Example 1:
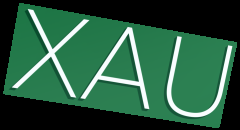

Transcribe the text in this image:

XAU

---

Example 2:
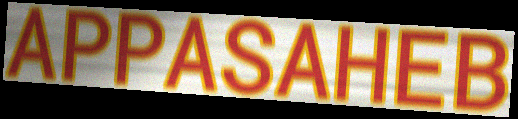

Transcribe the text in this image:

APPASAHEB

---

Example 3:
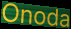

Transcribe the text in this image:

Onoda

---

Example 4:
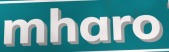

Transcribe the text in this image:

mharo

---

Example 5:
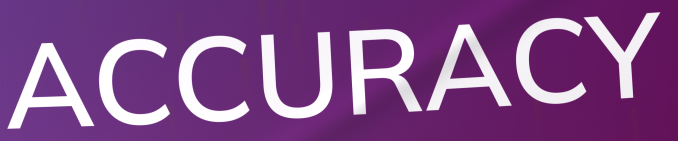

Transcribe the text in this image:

ACCURACY